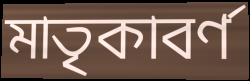
মাতৃকাবর্ণ